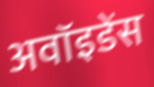
अवॉइडेंस